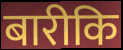
बारीकि